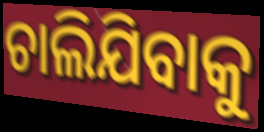
ଚାଲିଯିବାକୁ